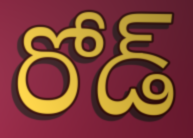
రోడ్